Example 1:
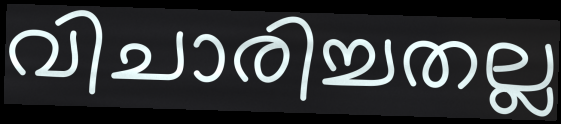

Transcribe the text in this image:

വിചാരിച്ചതല്ല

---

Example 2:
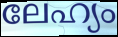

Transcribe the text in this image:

ലേഹ്യം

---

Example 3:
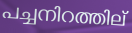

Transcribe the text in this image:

പച്ചനിറത്തില്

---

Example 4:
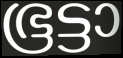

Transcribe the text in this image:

ഭൂട്ടാ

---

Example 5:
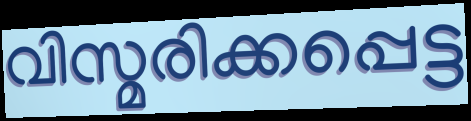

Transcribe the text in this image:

വിസ്മരിക്കപ്പെട്ട